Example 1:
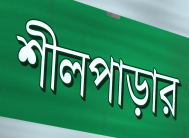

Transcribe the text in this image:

শীলপাড়ার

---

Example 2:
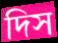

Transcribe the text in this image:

দিস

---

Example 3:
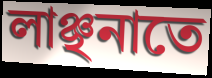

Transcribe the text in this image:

লাঞ্ছনাতে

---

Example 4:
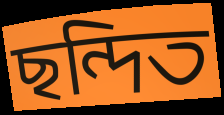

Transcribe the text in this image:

ছন্দিত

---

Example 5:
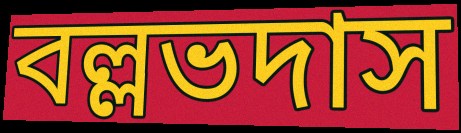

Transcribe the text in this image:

বল্লভদাস